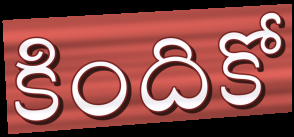
కిందికో